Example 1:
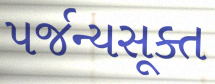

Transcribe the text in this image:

પર્જન્યસૂક્ત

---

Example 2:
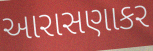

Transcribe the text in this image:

આરાસણાકર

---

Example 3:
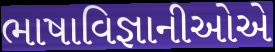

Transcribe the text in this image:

ભાષાવિજ્ઞાનીઓએ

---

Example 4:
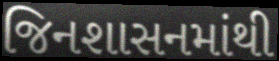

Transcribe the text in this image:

જિનશાસનમાંથી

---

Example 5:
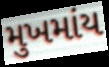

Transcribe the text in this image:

મુખમાંય